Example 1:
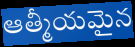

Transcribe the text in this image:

ఆత్మీయమైన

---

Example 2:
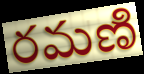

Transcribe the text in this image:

రమణి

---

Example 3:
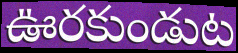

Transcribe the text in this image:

ఊరకుండుట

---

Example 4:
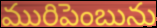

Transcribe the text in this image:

మురిపెంబును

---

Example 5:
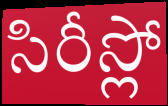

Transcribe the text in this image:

సిరీస్లో